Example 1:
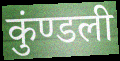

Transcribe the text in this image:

कुंण्डली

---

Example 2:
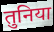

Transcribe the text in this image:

तुनिया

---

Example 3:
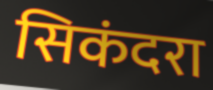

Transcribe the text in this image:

सिकंदरा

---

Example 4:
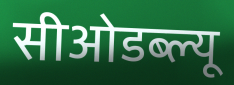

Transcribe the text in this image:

सीओडब्ल्यू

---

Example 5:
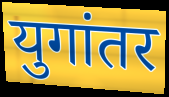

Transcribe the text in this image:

युगांतर